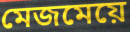
মেজমেয়ে